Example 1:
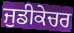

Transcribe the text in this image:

ਜੁਡੀਕੇਚਰ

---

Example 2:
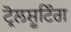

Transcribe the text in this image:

ਟ੍ਰੋਲਸ਼ੂਟਿੰਗ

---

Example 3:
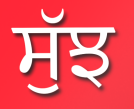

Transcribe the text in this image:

ਸੁੱਝ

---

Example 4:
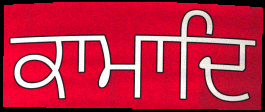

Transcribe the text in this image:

ਕਾਮਾਦਿ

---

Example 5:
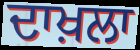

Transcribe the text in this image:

ਦਾਖ਼ਲਾ